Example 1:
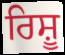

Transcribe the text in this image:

ਰਿਸ਼ੂ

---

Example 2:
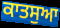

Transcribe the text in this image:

ਕਾਤਸੁਆ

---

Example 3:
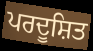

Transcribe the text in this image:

ਪਰਦੂਸ਼ਿਤ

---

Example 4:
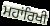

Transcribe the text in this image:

ਮਹਾਂਰਿਖੀ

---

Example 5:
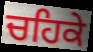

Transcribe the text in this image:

ਚਹਿਕੇ